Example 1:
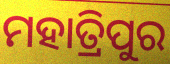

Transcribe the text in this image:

ମହାତ୍ରିପୁର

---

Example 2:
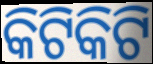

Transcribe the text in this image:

କିଟିକିଟି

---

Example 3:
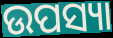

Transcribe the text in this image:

ଉପସ୍ୟା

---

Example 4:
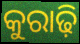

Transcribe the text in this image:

କୁରାଢ଼ି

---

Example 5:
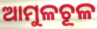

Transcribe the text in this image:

ଆମୁଳଚୂଳ